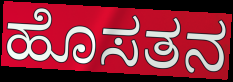
ಹೊಸತನ